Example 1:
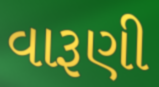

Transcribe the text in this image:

વારૂણી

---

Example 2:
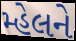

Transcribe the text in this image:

મ્હેલને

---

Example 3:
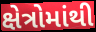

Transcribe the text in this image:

ક્ષેત્રોમાંથી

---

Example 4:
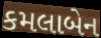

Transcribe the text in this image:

કમલાબેન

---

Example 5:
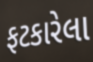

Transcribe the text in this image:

ફટકારેલા